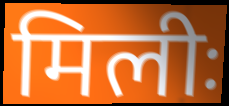
मिलीः